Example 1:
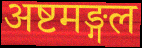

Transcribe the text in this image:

अष्टमङ्गल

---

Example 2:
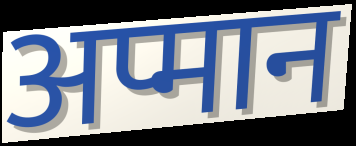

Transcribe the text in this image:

अप्मान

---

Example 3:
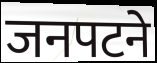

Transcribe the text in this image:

जनपटने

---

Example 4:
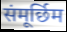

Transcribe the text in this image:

संमूर्छिम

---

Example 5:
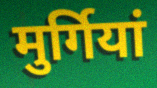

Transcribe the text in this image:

मुर्गियां